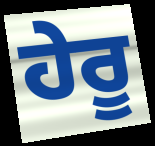
ਹੇਰੂ